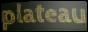
plateau